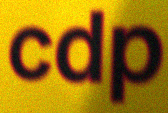
cdp